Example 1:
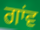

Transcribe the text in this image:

ਗਾਂਵ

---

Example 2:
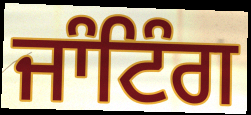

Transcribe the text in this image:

ਜਾੰਟਿੰਗ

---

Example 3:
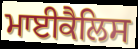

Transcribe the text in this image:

ਮਾਈਕੈਲਿਸ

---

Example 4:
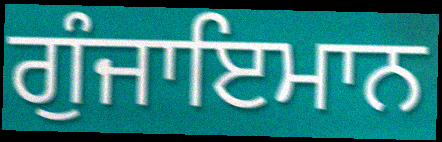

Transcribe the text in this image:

ਗੁੰਜਾਇਮਾਨ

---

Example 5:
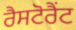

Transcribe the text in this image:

ਰੈਸਟੋਰੈਂਟ